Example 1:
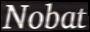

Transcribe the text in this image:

Nobat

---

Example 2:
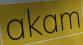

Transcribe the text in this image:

akam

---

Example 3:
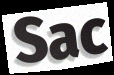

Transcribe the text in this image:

Sac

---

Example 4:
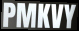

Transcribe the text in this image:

PMKVY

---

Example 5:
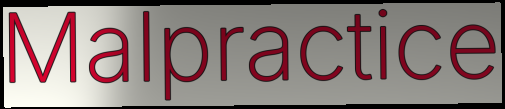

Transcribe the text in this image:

Malpractice